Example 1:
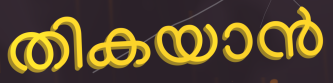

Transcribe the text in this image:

തികയാൻ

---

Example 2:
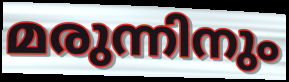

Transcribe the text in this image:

മരുന്നിനും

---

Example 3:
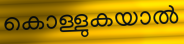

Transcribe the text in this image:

കൊള്ളുകയാൽ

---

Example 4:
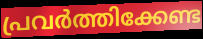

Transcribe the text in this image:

പ്രവർത്തിക്കേണ്ട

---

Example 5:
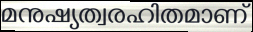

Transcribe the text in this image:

മനുഷ്യത്വരഹിതമാണ്